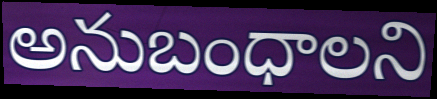
అనుబంధాలని